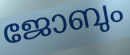
ജോബും